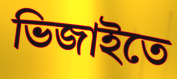
ভিজাইতে